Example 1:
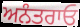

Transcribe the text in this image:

ਅਨੰਤਰਾਓ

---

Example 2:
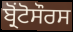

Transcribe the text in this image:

ਬ੍ਰੋਂਟੋਸੌਰਸ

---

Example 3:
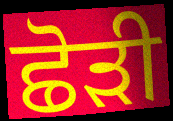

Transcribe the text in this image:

ਛੋੜੀ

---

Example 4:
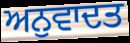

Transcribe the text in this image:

ਅਨੁਵਾਦਤ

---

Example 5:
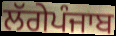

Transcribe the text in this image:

ਲੱਗੇਪੰਜਾਬ